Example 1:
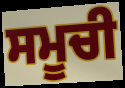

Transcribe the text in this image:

ਸਮੂਚੀ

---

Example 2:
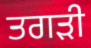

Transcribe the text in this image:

ਤਗੜੀ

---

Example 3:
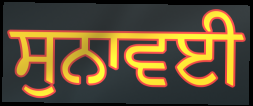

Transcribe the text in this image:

ਸੁਨਾਵਈ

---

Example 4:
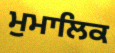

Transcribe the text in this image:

ਮੁਮਾਲਿਕ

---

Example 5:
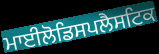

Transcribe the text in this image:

ਮਾਈਲੋਡਿਸਪਲੈਸਟਿਕ